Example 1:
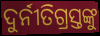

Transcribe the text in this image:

ଦୁର୍ନୀତିଗ୍ରସ୍ତଙ୍କୁ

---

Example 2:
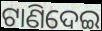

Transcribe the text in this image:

ଟାଣିଦେଇ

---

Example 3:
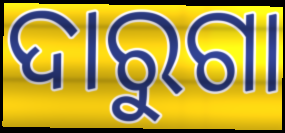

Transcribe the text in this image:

ଦାରୁଗା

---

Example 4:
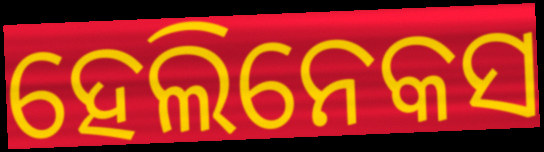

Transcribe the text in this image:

ହେଲିନେକସ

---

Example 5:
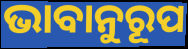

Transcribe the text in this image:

ଭାବାନୁରୂପ